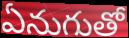
ఏనుగుతో